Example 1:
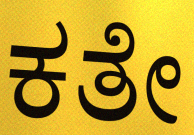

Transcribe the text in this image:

ಕತೇ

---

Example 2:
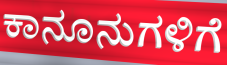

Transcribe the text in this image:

ಕಾನೂನುಗಳಿಗೆ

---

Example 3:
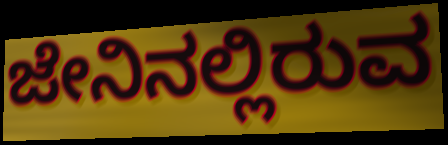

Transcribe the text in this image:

ಜೇನಿನಲ್ಲಿರುವ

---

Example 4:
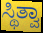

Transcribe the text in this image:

ಸ್ಥಿತ್ವಾ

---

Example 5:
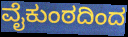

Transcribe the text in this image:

ವೈಕುಂಠದಿಂದ